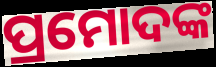
ପ୍ରମୋଦଙ୍କ